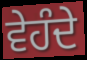
ਵੇਹੰਦੇ